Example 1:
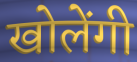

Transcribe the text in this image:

खोलेंगी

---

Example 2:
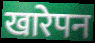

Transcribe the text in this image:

खारेपन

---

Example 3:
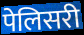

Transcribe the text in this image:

पेलिसरी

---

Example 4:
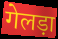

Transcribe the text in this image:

गेलड़ा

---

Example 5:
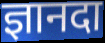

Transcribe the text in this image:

ज्ञानदा